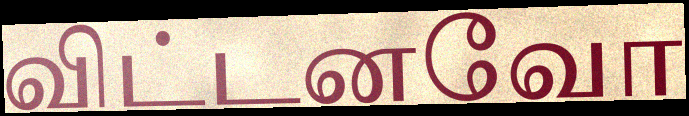
விட்டனவோ